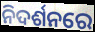
ନିଦର୍ଶନରେ